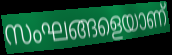
സംഘങ്ങളെയാണ്